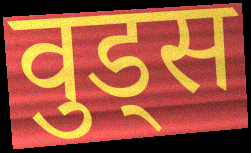
वुड्स